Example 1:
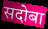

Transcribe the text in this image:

सदोबा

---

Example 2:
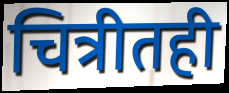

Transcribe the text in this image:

चित्रीतही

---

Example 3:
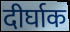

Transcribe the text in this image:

दीर्घाक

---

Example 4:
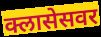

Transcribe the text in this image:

क्लासेसवर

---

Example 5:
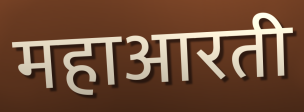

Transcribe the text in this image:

महाआरती